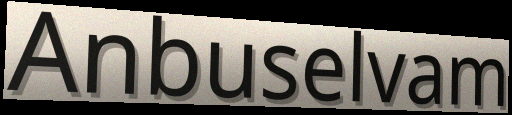
Anbuselvam